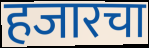
हजारचा